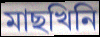
মাছখিনি